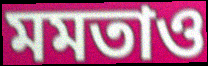
মমতাও